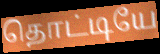
தொட்டியே